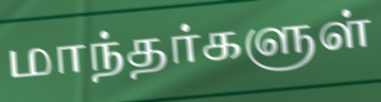
மாந்தர்களுள்